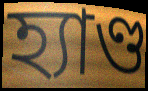
হ্যাণ্ড